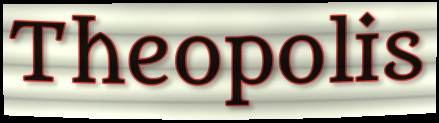
Theopolis